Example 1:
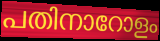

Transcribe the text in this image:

പതിനാറോളം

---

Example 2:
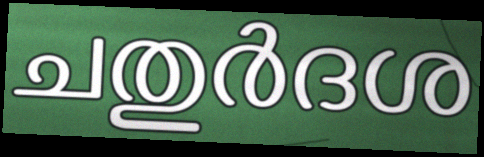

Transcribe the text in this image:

ചതുർദശ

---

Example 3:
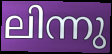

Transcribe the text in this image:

ലിന്നു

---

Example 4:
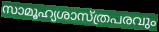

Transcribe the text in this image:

സാമൂഹ്യശാസ്ത്രപരവും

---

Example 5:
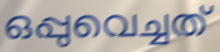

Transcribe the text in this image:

ഒപ്പുവെച്ചത്